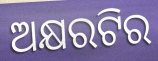
ଅକ୍ଷରଟିର